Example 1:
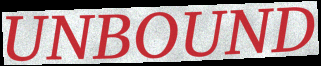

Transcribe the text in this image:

UNBOUND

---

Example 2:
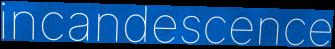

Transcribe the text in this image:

incandescence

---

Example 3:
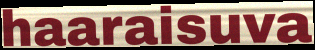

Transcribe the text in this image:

haaraisuva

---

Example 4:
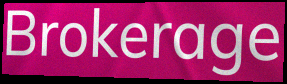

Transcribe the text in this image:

Brokerage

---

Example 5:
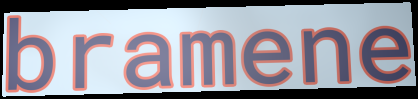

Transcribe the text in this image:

bramene